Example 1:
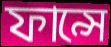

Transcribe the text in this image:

ফান্সে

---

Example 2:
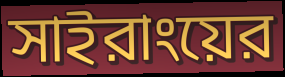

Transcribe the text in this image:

সাইরাংয়ের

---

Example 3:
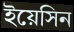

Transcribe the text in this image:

ইয়েসিন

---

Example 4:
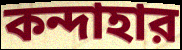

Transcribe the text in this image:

কন্দাহার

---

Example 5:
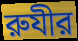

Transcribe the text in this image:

রুযীর